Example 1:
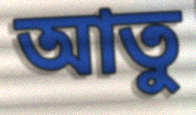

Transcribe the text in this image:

আতু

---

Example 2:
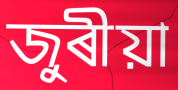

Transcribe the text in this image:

জুৰীয়া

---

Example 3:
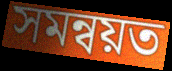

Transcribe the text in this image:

সমন্বয়ত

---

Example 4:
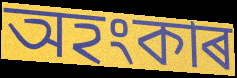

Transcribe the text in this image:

অহংকাৰ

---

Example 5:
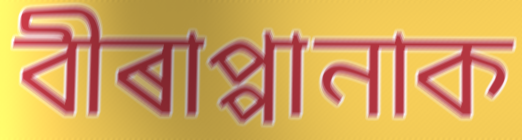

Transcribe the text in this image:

বীৰাপ্পানাক